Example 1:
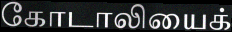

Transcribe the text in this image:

கோடாலியைக்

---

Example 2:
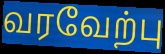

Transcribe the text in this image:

வரவேற்பு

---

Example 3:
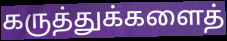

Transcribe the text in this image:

கருத்துக்களைத்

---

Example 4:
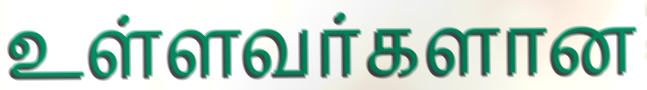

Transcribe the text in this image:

உள்ளவர்களான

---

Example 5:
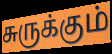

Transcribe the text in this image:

சுருக்கும்